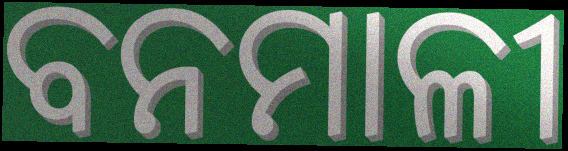
ବନମାଳୀ